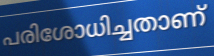
പരിശോധിച്ചതാണ്